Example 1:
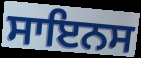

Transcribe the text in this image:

ਸਾਇਨਸ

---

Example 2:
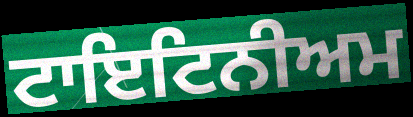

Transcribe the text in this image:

ਟਾਇਟਿਨੀਅਮ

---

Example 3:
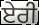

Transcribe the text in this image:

ਏਰੀ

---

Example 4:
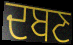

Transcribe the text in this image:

ਦਬਣ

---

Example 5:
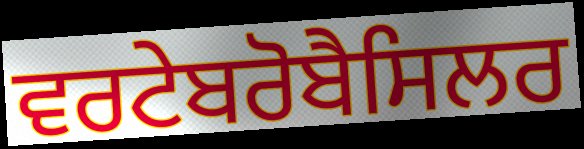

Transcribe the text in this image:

ਵਰਟੇਬਰੋਬੈਸਿਲਰ